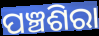
ପଞ୍ଚଶିରା